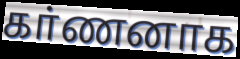
கர்ணனாக